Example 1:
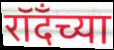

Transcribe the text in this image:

रॉदँच्या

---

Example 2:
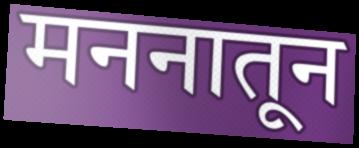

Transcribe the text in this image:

मननातून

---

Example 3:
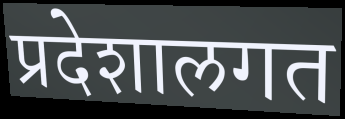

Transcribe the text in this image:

प्रदेशालगत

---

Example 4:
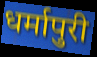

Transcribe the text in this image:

धर्मापुरी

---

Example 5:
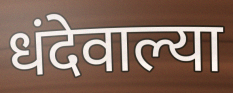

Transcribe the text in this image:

धंदेवाल्या